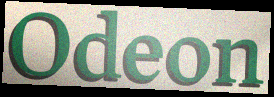
Odeon